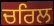
ਚਰਿਲ